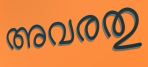
അവരതു